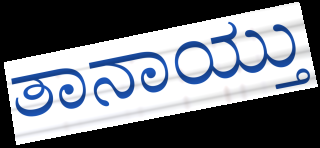
ತಾನಾಯ್ತು